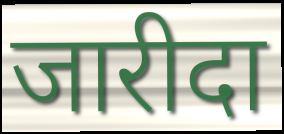
जारीदा